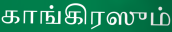
காங்கிரஸும்